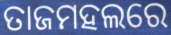
ତାଜମହଲରେ